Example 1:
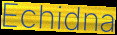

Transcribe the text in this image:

Echidna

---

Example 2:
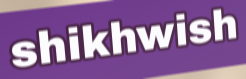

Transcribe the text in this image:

shikhwish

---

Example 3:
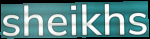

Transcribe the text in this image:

sheikhs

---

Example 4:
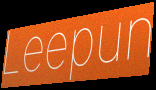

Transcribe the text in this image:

Leepun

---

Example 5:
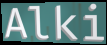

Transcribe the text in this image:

Alki